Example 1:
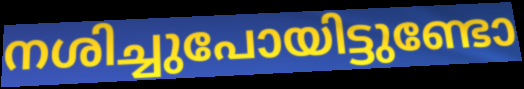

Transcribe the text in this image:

നശിച്ചുപോയിട്ടുണ്ടോ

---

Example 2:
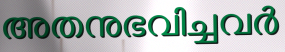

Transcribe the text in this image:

അതനുഭവിച്ചവർ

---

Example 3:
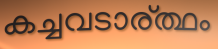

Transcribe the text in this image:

കച്ചവടാര്ത്ഥം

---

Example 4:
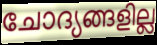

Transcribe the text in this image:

ചോദ്യങ്ങളില്ല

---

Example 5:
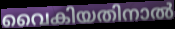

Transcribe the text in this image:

വൈകിയതിനാൽ